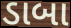
ડાબા